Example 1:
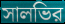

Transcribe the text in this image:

সালভির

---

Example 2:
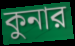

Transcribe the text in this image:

কুনার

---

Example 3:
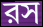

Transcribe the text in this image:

রস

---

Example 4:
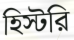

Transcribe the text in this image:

হিস্টরি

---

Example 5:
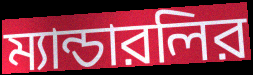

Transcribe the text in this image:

ম্যান্ডারলির